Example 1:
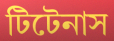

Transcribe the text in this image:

টিটেনাস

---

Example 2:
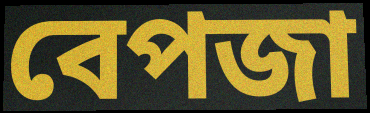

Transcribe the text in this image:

বেপজা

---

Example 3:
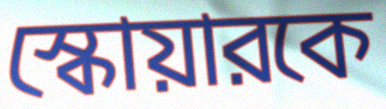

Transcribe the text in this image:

স্কোয়ারকে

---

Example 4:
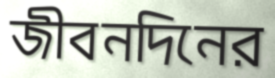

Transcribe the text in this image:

জীবনদিনের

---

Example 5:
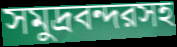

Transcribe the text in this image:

সমুদ্রবন্দরসহ